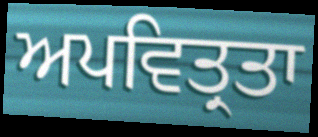
ਅਪਵਿਤ੍ਰਤਾ